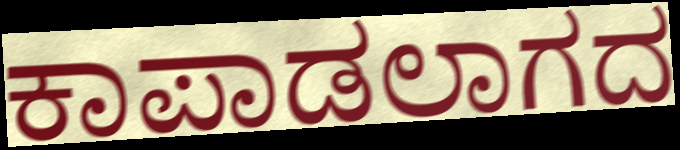
ಕಾಪಾಡಲಾಗದ